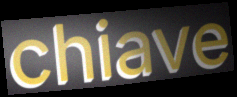
chiave